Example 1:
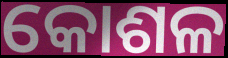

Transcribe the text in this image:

କୋଶଳ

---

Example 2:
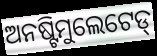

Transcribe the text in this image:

ଅନଷ୍ଟିମୁଲେଟେଡ୍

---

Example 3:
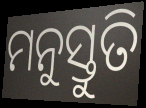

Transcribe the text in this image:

ମନୁସ୍ତୁତି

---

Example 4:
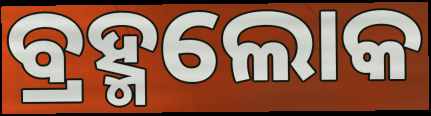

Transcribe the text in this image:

ବ୍ରହ୍ମଲୋକ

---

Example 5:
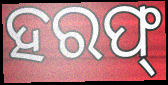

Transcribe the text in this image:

ହରଫ୍